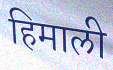
हिमाली